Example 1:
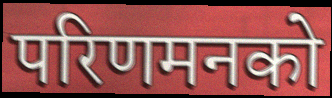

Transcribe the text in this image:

परिणमनको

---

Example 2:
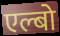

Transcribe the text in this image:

एल्बो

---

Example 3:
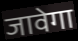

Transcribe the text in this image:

जावेगा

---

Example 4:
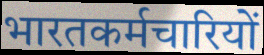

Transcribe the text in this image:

भारतकर्मचारियों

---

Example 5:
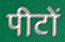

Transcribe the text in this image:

पीटों